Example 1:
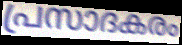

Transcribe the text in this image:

പ്രസാദകരം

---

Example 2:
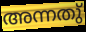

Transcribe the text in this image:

അന്നതു്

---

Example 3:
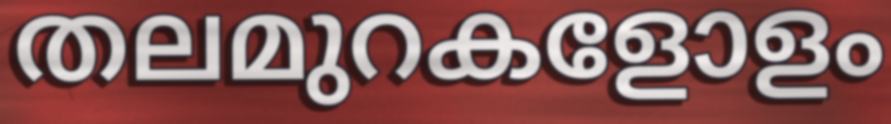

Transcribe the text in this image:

തലമുറകളോളം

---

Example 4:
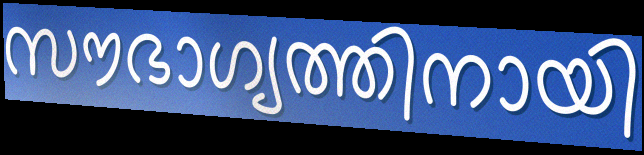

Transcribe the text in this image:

സൗഭാഗ്യത്തിനായി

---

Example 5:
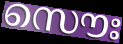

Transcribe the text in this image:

സൌഃ